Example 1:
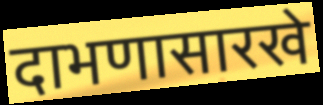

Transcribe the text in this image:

दाभणासारखे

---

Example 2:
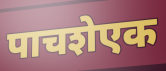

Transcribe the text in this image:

पाचशेएक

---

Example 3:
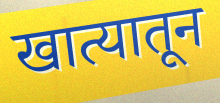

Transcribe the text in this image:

खात्यातून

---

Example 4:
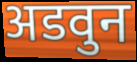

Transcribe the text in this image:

अडवुन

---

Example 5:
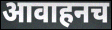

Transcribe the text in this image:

आवाहनच